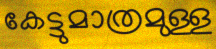
കേട്ടുമാത്രമുള്ള